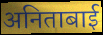
अनिताबाई